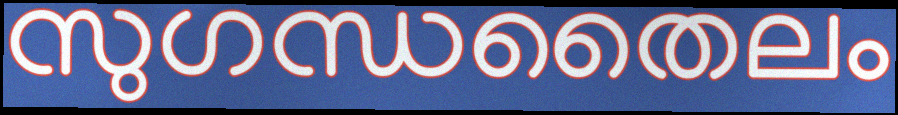
സുഗന്ധതൈലം